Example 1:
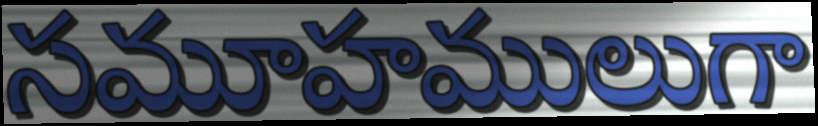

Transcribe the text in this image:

సమూహములుగా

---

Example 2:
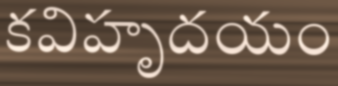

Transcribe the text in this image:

కవిహృదయం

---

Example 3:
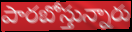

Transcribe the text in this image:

పారబోస్తున్నారు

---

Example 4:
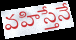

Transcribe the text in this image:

వహిస్తేనే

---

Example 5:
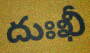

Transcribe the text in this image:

దుఃఖీ